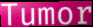
Tumor